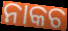
ନାକଚ